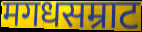
मगधसम्राट